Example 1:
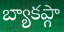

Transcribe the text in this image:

బ్యాకప్గా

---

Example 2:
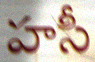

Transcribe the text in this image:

హసీ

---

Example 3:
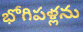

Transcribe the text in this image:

భోగిపళ్లను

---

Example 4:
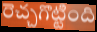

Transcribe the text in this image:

రెచ్చగొట్టింది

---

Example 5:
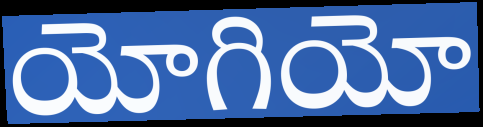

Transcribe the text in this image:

యోగియో